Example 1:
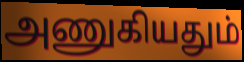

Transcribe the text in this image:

அணுகியதும்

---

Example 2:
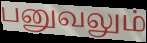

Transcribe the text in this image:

பனுவலும்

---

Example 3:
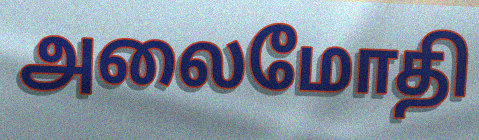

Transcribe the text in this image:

அலைமோதி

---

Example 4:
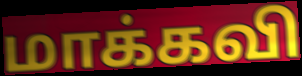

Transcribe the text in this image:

மாக்கவி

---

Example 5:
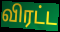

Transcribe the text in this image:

விரட்ட